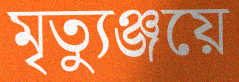
মৃত্যুঞ্জয়ে